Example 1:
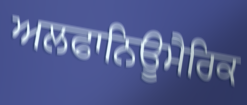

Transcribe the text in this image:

ਅਲਫਾਨਿਊਮੈਰਿਕ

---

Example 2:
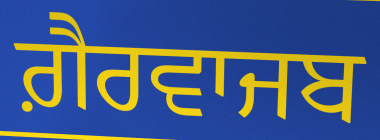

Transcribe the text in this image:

ਗ਼ੈਰਵਾਜਬ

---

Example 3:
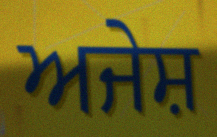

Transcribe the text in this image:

ਅਜੇਸ਼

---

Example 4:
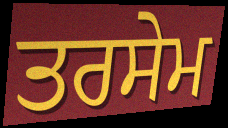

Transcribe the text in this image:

ਤਰਸੇਮ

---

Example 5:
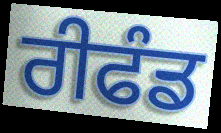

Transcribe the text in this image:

ਰੀਫੰਡ